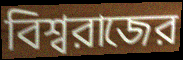
বিশ্বরাজের